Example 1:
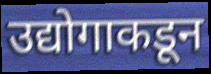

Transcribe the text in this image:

उद्योगाकडून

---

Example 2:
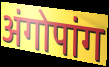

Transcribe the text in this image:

अंगोपांग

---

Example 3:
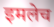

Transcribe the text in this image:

इमलेच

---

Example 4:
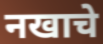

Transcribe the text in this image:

नखाचे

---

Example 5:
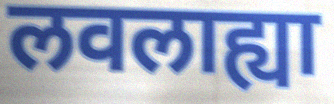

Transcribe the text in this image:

लवलाह्या